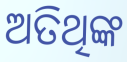
ଅତିଥିଙ୍କ